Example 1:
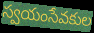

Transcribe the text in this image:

స్వయంసేవకుల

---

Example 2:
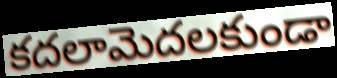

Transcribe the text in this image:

కదలామెదలకుండా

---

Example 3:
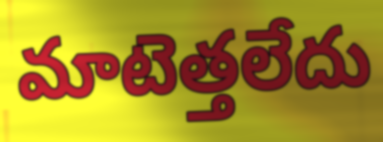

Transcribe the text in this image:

మాటెత్తలేదు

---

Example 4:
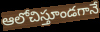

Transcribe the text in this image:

ఆలోచిస్తూండగానే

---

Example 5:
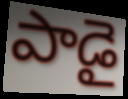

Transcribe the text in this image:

పాడై